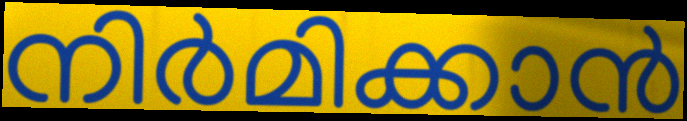
നിർമിക്കാൻ